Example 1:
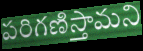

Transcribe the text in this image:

పరిగణిస్తామని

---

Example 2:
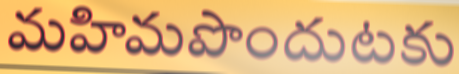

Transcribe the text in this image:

మహిమపొందుటకు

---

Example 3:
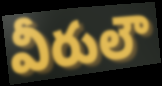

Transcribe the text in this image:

వీరులౌ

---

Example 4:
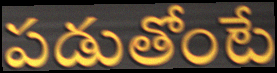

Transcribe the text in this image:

పడుతోంటే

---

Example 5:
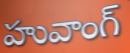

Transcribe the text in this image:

హువాంగ్